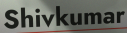
Shivkumar